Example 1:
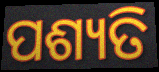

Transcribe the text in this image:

ପଶ୍ୟତି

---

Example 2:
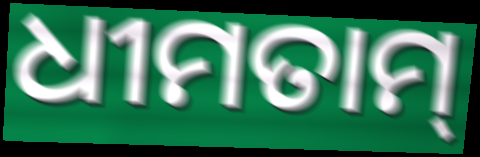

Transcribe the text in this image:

ଧୀମତାମ୍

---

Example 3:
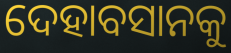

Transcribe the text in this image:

ଦେହାବସାନକୁ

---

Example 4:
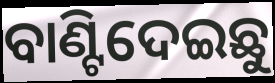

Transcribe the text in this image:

ବାଣ୍ଟିଦେଇଛୁ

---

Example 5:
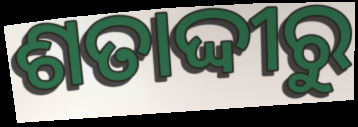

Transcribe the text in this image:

ଶତାଦ୍ଦୀରୁ